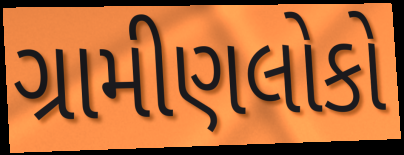
ગ્રામીણલોકો